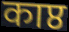
काप्ठ